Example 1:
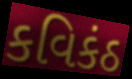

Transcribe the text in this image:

કવિકંઠ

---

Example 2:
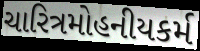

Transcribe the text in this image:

ચારિત્રમોહનીયકર્મ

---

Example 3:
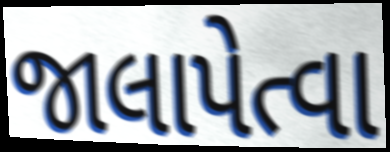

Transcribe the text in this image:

જાલાપેત્વા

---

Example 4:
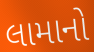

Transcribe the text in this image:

લામાનો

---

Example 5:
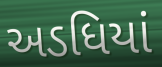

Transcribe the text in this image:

અડધિયાં